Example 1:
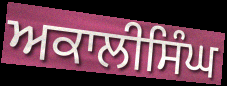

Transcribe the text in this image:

ਅਕਾਲੀਸਿੰਘ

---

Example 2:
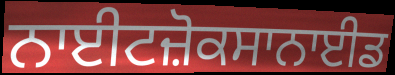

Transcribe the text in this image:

ਨਾਈਟਜ਼ੋਕਸਾਨਾਈਡ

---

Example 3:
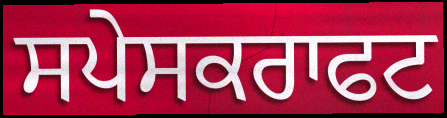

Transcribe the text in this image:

ਸਪੇਸਕਰਾਫਟ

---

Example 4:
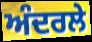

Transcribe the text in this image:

ਅੰਦਰਲੇ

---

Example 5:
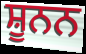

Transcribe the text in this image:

ਸ਼ੂਨਨ